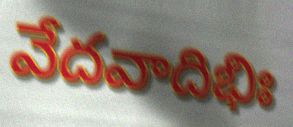
వేదవాదిభిః